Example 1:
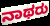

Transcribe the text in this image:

ನಾಥರು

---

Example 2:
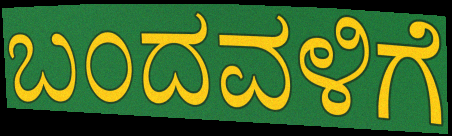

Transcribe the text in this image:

ಬಂದವಳಿಗೆ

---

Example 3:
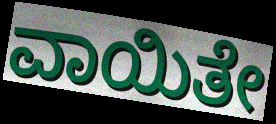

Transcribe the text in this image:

ವಾಯಿತೇ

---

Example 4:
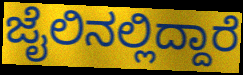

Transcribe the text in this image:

ಜೈಲಿನಲ್ಲಿದ್ದಾರೆ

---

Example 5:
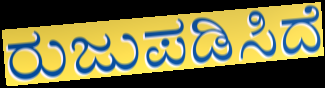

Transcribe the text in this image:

ರುಜುಪಡಿಸಿದೆ